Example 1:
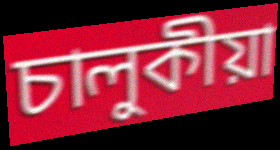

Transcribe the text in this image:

চালুকীয়া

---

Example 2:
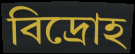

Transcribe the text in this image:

বিদ্ৰোহ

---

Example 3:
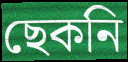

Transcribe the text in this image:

ছেকনি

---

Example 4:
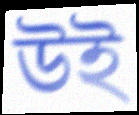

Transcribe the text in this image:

উই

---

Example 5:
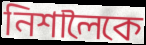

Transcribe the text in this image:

নিশালৈকে